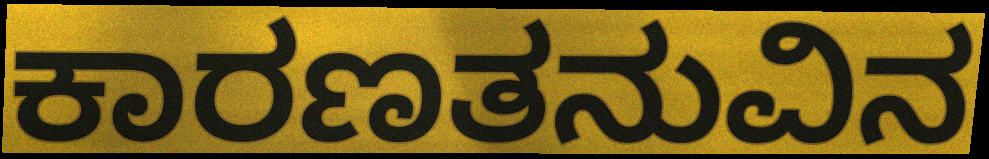
ಕಾರಣತನುವಿನ